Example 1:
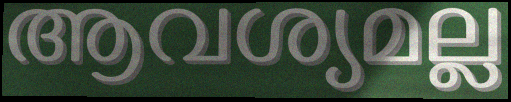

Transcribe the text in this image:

ആവശ്യമല്ല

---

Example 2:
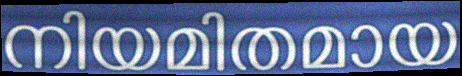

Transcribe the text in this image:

നിയമിതമായ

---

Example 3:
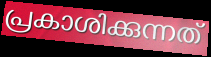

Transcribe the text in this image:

പ്രകാശിക്കുന്നത്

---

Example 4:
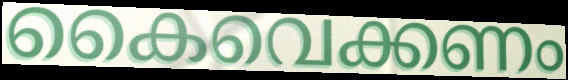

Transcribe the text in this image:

കൈവെക്കണം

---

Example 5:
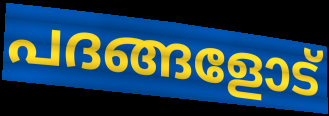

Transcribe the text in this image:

പദങ്ങളോട്